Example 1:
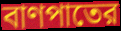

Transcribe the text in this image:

বাণপাতের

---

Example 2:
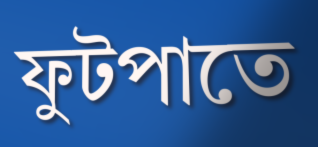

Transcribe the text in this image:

ফুটপাতে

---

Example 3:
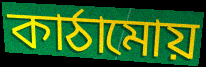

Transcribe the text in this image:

কাঠামোয়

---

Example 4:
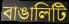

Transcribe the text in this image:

বাঙালিটি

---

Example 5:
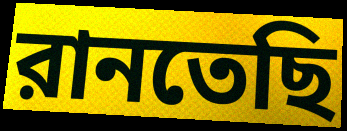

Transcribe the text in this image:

রানতেছি